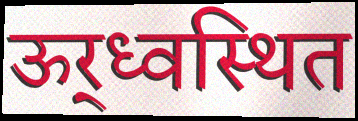
ऊर्ध्वस्थित